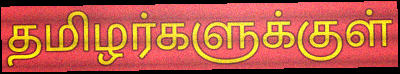
தமிழர்களுக்குள்